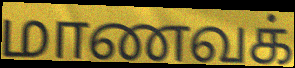
மாணவக்